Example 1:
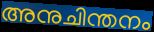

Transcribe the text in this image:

അനുചിന്തനം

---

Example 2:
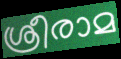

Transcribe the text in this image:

ശ്രീരാമ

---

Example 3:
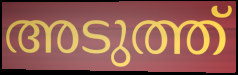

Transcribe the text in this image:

അടുത്ത്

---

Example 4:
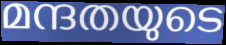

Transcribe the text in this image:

മന്ദതയുടെ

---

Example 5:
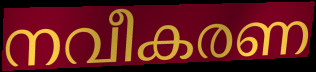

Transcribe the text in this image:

നവീകരണ